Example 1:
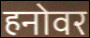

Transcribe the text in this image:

हनोवर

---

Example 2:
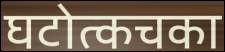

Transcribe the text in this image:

घटोत्कचका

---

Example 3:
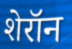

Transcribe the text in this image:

शेरॉन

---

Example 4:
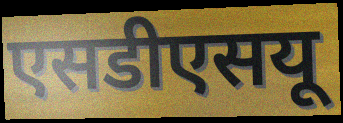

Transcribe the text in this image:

एसडीएसयू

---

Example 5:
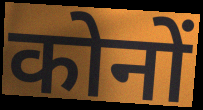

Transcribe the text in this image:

कोनों